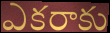
ఎకరాకు